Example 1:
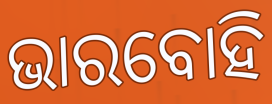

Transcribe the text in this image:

ଭାରବୋହି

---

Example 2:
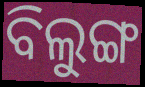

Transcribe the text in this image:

ବିଲୁଙ୍ଗ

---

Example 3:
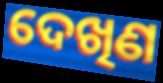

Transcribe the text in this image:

ଦେଖିଣ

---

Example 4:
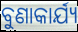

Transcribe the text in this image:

ବୁଣାକାର୍ଯ୍ୟ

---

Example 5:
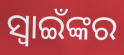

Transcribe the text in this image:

ସ୍ୱାଇଁଙ୍କର